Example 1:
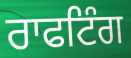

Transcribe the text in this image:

ਰਾਫਟਿੰਗ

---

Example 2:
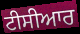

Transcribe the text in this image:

ਟੀਸੀਆਰ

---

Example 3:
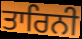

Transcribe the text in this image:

ਤਾਰਿਨੀ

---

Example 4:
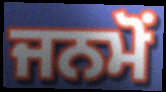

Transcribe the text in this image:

ਜਨਮੋਂ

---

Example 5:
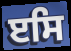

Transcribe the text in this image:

ੲਸਿ